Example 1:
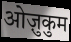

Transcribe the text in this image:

ओज़ुकुम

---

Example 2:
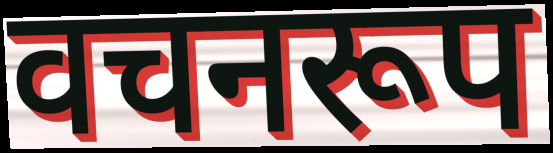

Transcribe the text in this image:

वचनरूप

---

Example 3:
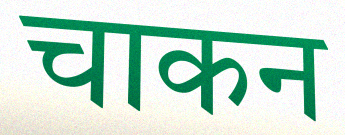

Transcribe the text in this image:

चाकन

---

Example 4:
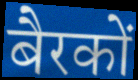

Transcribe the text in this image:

बैरकों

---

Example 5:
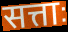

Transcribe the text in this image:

सत्ताः